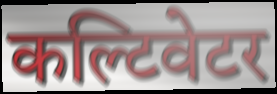
कल्टिवेटर